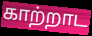
காற்றாட